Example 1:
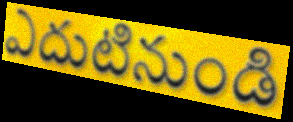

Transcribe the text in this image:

ఎదుటినుండి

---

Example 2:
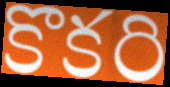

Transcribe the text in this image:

కొకరి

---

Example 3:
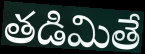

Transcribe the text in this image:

తడిమితే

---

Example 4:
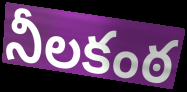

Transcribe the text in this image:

నీలకంఠ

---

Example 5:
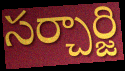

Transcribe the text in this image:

సర్చార్జి